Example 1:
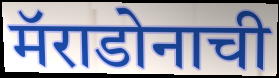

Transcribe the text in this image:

मॅराडोनाची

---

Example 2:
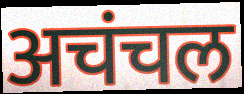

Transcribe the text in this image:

अचंचल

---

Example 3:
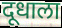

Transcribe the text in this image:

दूधाला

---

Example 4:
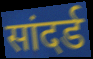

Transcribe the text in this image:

सांदर्ड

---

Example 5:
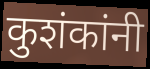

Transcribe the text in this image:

कुशंकांनी